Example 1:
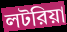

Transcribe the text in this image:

লটরিয়া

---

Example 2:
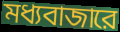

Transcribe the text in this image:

মধ্যবাজারে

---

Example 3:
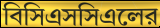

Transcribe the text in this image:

বিসিএসসিএলের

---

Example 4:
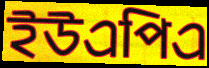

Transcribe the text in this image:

ইউএপিএ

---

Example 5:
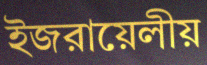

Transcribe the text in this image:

ইজরায়েলীয়